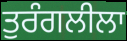
ਤੁਰੰਗਲੀਲਾ